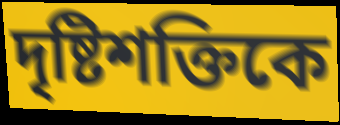
দৃষ্টিশক্তিকে